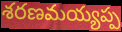
శరణమయ్యప్ప